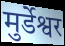
मुर्डेश्वर